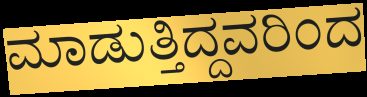
ಮಾಡುತ್ತಿದ್ದವರಿಂದ